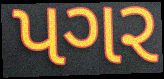
પગર